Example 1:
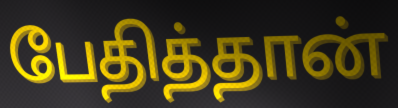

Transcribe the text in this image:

பேதித்தான்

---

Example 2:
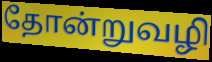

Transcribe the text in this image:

தோன்றுவழி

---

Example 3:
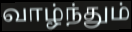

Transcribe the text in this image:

வாழ்ந்தும்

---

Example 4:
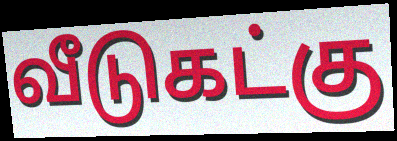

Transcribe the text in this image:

வீடுகட்கு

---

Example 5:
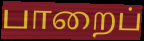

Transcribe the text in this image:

பாறைப்